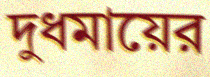
দুধমায়ের